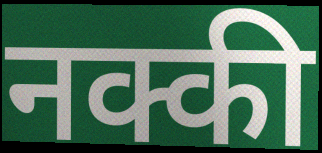
नक्की